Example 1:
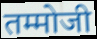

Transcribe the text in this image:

तम्मोजी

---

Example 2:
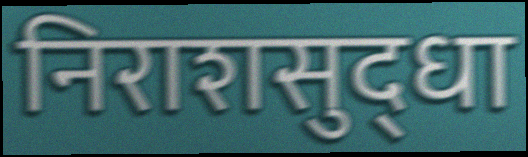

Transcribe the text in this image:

निराशसुद्धा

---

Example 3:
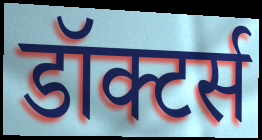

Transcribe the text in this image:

डॉक्टर्स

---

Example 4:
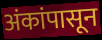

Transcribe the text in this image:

अंकांपासून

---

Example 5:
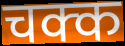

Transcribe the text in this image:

चक्‍क